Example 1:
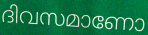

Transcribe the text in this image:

ദിവസമാണോ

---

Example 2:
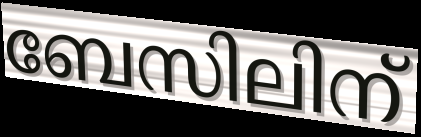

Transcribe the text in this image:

ബേസിലിന്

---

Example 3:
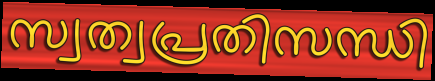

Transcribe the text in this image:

സ്വത്വപ്രതിസന്ധി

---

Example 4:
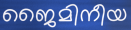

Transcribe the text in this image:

ജൈമിനീയ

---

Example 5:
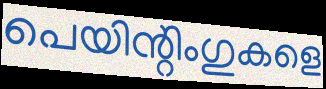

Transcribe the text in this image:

പെയിന്റിംഗുകളെ